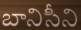
బానిసీని